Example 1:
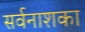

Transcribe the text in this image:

सर्वनाशका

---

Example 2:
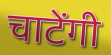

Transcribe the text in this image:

चाटेंगी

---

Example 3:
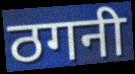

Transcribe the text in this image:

ठगनी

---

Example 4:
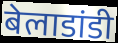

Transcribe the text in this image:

बेलाडांडी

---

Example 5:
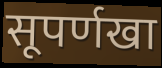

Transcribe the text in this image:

सूपर्णखा